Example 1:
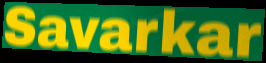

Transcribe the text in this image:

Savarkar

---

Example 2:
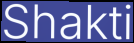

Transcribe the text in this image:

Shakti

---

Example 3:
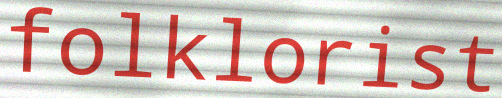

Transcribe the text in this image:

folklorist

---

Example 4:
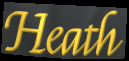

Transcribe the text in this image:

Heath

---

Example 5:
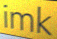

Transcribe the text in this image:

imk